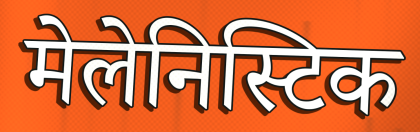
मेलेनिस्टिक